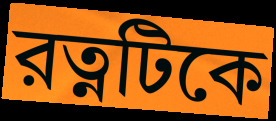
রত্নটিকে